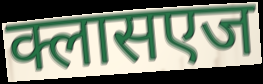
क्लासएज